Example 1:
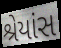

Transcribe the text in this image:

શ્રેયાંસ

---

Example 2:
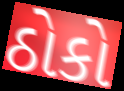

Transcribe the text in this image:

ઠોકો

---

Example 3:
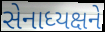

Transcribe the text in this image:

સેનાધ્યક્ષને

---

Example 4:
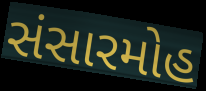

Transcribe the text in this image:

સંસારમોહ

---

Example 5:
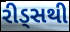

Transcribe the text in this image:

રીડ્સથી